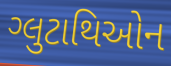
ગ્લુટાથિઓન